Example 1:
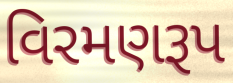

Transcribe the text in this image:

વિરમણરૂપ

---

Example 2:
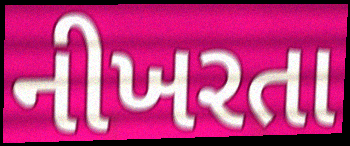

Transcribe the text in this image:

નીખરતા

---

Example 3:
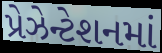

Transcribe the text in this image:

પ્રેઝેન્ટેશનમાં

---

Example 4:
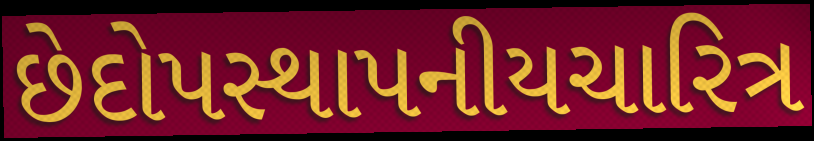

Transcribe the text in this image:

છેદોપસ્થાપનીયચારિત્ર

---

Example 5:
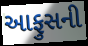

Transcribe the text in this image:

આફુસની